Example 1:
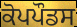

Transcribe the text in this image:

ਕੋਪਪੌਡਸ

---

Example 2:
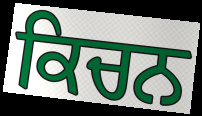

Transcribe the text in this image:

ਕਿਚਨ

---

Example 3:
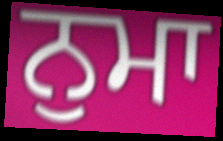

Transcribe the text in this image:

ਨੁਮਾ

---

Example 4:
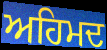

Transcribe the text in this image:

ਅਹਿਮਦ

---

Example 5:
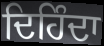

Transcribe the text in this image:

ਦਿਹਿੰਦਾ